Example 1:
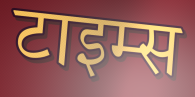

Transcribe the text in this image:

टाइम्स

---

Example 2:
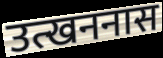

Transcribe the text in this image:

उत्खननास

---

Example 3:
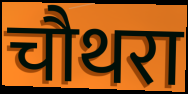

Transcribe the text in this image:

चौथरा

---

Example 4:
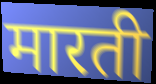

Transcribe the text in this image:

मारती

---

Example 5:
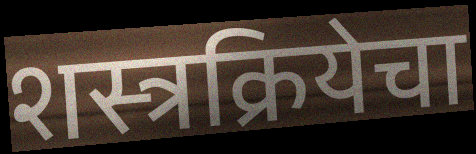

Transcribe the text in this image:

शस्त्रक्रियेचा